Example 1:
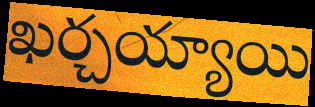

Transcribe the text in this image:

ఖర్చయ్యాయి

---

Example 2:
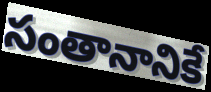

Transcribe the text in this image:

సంతానానికే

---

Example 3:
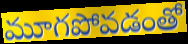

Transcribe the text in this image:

మూగపోవడంతో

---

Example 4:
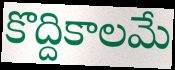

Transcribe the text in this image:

కొద్దికాలమే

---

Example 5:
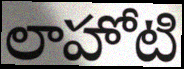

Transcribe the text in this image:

లాహోటి